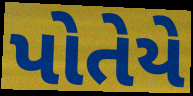
પોતેયે